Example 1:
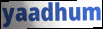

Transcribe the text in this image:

yaadhum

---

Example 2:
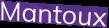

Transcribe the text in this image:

Mantoux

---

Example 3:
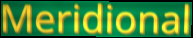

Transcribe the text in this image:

Meridional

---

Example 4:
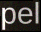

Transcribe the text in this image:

pel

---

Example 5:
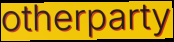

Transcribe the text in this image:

otherparty